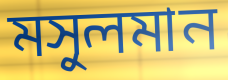
মসুলমান